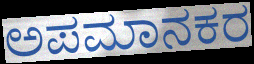
ಅಪಮಾನಕರ